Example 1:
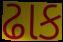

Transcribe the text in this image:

ઢાક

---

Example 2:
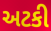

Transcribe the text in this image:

અટકી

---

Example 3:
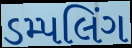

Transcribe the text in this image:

ડમ્પલિંગ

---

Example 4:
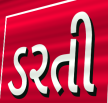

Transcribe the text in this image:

ડરતી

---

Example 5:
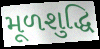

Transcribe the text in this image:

મૂળશુદ્ધિ